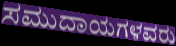
ಸಮುದಾಯಗಳವರು